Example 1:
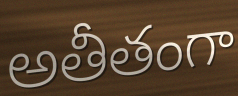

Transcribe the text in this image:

అతీతంగా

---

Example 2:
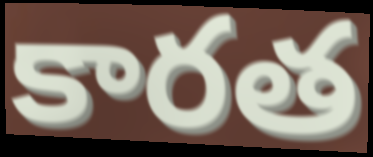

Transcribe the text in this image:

కారత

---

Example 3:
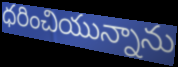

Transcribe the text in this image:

ధరించియున్నాను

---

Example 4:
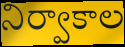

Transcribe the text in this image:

నిర్వాకాల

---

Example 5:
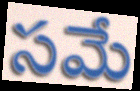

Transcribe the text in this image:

సమే